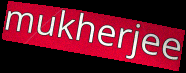
mukherjee